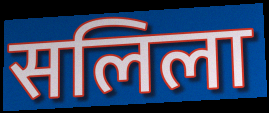
सलिला